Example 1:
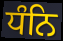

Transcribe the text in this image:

ਧੰਨਿ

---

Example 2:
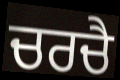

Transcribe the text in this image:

ਚਰਚੈ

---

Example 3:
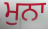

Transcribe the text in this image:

ਮੁਨਾ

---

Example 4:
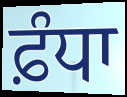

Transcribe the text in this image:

ਫ਼ੰਧਾ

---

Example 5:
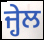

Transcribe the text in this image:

ਜ੍ਹੇਲ